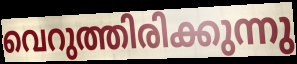
വെറുത്തിരിക്കുന്നു